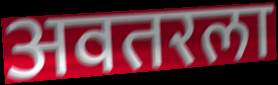
अवतरला